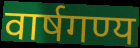
वार्षगण्य